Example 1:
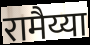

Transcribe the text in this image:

रामैय्या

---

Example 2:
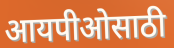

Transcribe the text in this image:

आयपीओसाठी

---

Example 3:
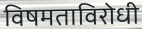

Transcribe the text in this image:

विषमताविरोधी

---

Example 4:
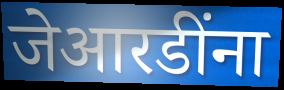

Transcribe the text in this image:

जेआरडींना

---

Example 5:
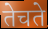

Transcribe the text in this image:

तेचते